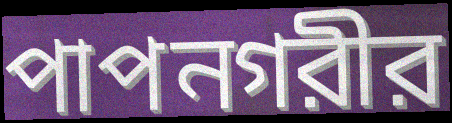
পাপনগরীর